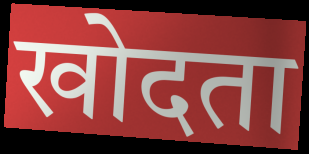
खोदता